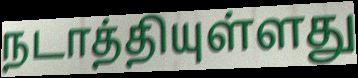
நடாத்தியுள்ளது